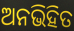
ଅନଭିହିତ